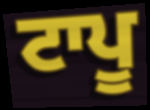
ਟਾਪੂ